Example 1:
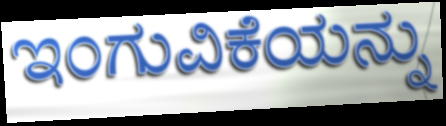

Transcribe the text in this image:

ಇಂಗುವಿಕೆಯನ್ನು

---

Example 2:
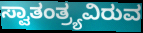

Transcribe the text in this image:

ಸ್ವಾತಂತ್ರ್ಯವಿರುವ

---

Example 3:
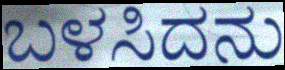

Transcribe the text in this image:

ಬಳಸಿದನು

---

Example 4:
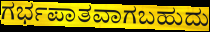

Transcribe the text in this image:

ಗರ್ಭಪಾತವಾಗಬಹುದು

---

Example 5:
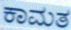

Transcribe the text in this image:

ಕಾಮತ